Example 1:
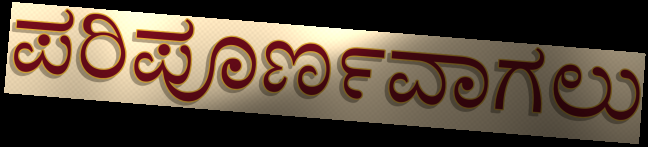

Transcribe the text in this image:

ಪರಿಪೂರ್ಣವಾಗಲು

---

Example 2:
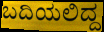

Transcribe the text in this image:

ಬದಿಯಲಿದ್ದ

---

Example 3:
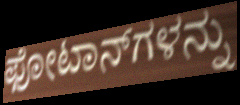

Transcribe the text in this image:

ಫೋಟಾನ್‌ಗಳನ್ನು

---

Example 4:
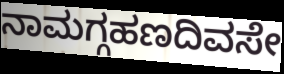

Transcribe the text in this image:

ನಾಮಗ್ಗಹಣದಿವಸೇ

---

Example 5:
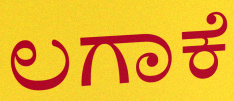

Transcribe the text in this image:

ಲಗಾಕೆ